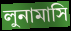
লুনামাসি